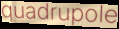
quadrupole